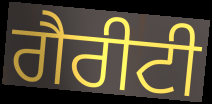
ਗੈਰੀਟੀ